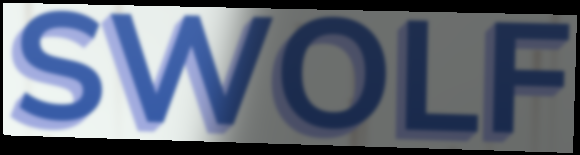
SWOLF